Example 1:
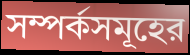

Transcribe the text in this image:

সম্পর্কসমূহের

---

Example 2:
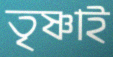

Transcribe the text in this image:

তৃষ্ণাই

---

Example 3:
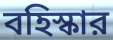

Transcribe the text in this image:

বহিস্কার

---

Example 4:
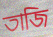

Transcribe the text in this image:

তাজি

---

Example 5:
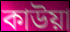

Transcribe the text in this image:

কাউয়া